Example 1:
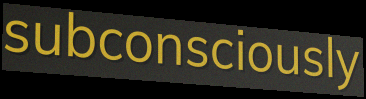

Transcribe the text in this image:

subconsciously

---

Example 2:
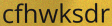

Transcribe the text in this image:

cfhwksdr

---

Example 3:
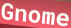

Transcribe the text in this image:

Gnome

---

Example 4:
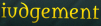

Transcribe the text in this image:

iudgement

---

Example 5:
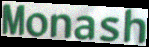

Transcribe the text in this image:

Monash